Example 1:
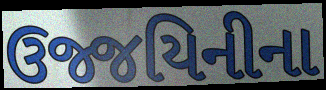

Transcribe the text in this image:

ઉજ્જયિનીના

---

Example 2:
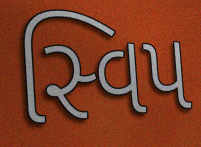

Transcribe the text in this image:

સ્વિપ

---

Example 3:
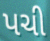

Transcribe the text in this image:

પચી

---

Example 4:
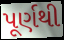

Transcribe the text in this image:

પૂર્ણથી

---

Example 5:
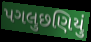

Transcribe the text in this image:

પગલુછણિયું